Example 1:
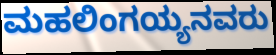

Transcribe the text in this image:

ಮಹಲಿಂಗಯ್ಯನವರು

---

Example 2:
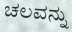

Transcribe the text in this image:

ಚಲವನ್ನು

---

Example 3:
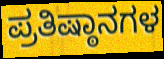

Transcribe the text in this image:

ಪ್ರತಿಷ್ಠಾನಗಳ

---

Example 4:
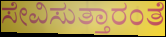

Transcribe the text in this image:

ಸೇವಿಸುತ್ತಾರಂತೆ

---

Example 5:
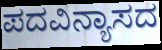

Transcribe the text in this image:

ಪದವಿನ್ಯಾಸದ